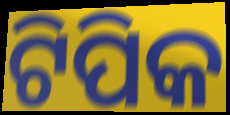
ଟିପିକ